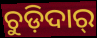
ଚୁଡ଼ିଦାର୍